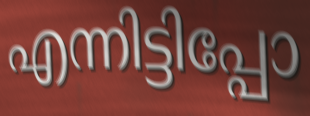
എന്നിട്ടിപ്പോ